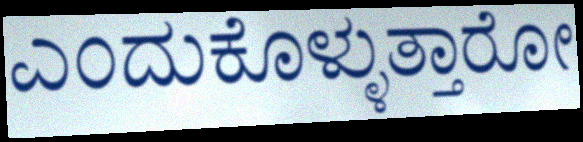
ಎಂದುಕೊಳ್ಳುತ್ತಾರೋ